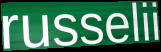
russelii